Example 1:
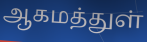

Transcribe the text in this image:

ஆகமத்துள்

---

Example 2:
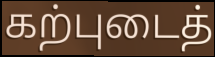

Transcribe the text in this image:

கற்புடைத்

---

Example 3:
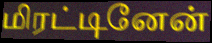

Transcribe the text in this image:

மிரட்டினேன்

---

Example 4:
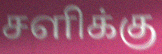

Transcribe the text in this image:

சளிக்கு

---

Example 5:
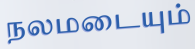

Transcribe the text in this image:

நலமடையும்